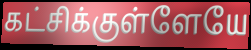
கட்சிக்குள்ளேயே